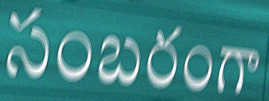
సంబరంగా